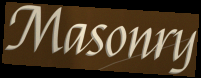
Masonry